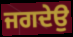
ਜਗਦੇਉ